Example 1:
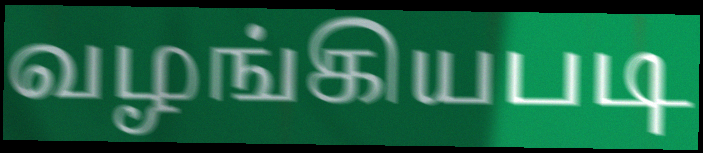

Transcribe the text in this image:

வழங்கியபடி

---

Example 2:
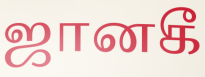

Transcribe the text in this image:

ஜானகீ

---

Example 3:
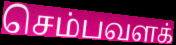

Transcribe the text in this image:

செம்பவளக்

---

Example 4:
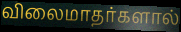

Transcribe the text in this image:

விலைமாதர்களால்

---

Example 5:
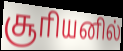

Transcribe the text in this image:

சூரியனில்